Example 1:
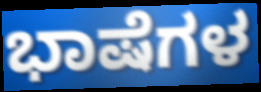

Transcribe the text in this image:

ಭಾಷೆಗಳ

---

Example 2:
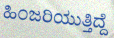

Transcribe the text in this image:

ಹಿಂಜರಿಯುತ್ತಿದ್ದೆ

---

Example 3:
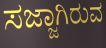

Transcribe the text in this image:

ಸಜ್ಜಾಗಿರುವ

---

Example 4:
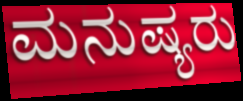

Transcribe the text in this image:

ಮನುಷ್ಯರು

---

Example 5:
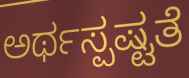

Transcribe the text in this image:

ಅರ್ಥಸ್ಪಷ್ಟತೆ